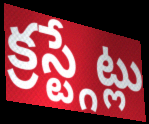
క్రస్ట్గేట్లు